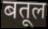
बतूल